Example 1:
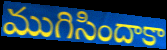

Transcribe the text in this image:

ముగిసిందాకా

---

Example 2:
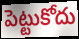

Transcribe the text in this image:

పెట్టుకోదు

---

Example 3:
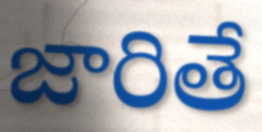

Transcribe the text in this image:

జారితే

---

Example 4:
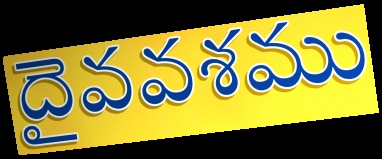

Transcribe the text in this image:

దైవవశము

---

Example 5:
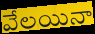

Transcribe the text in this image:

వేలయినా